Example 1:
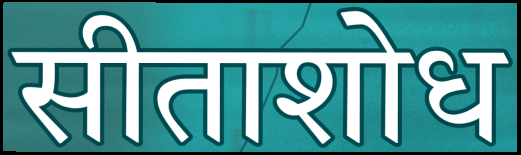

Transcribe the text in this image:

सीताशोध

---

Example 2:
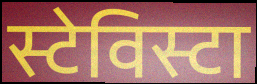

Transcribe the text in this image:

स्टेविस्टा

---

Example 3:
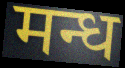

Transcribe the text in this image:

मन्ध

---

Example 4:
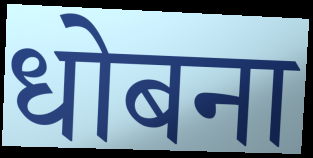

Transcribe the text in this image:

धोबना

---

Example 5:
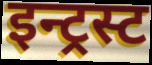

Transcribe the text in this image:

इन्ट्रस्ट